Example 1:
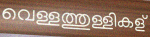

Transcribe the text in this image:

വെള്ളത്തുള്ളികള്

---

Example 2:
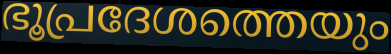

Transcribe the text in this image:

ഭൂപ്രദേശത്തെയും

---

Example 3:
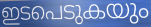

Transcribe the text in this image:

ഇടപെടുകയും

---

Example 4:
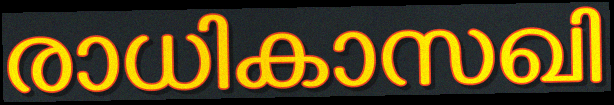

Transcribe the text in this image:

രാധികാസഖി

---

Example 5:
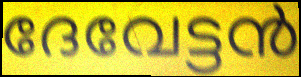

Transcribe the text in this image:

ദേവേട്ടൻ